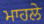
ਮਾਹਲੇ